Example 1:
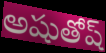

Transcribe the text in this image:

అషుతోష్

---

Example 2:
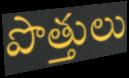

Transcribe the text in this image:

పొత్తులు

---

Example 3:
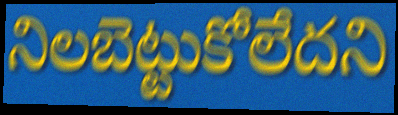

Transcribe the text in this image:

నిలబెట్టుకోలేదని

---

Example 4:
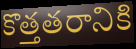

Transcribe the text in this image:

కొత్తతరానికి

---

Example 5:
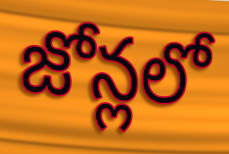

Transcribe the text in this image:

జోన్లలో